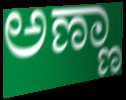
ಅಣ್ಣಾ